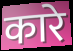
कारे